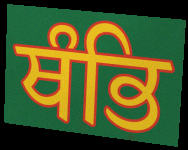
ਥੰਭਿ